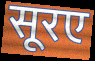
सूरए